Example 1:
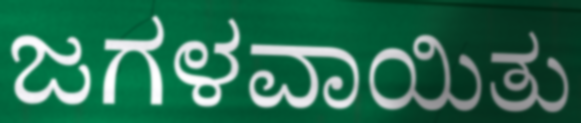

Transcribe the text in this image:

ಜಗಳವಾಯಿತು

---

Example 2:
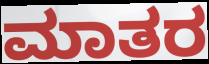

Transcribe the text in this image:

ಮಾತರ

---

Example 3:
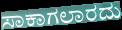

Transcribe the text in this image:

ಸಾಕಾಗಲಾರದು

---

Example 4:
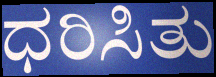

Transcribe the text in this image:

ಧರಿಸಿತು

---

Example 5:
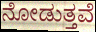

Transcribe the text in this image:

ನೋಡುತ್ತವೆ